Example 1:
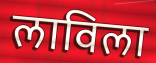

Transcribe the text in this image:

लाविला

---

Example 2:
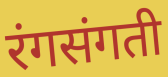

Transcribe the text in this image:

रंगसंगती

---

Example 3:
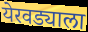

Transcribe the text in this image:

येरवड्याला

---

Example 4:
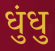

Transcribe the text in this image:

धुंधु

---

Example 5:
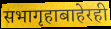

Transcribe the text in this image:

सभागृहाबाहेरही